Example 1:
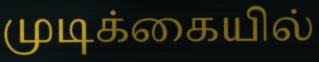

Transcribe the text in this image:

முடிக்கையில்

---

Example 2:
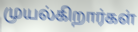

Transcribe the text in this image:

முயல்கிறார்கள்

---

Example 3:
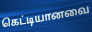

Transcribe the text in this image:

கெட்டியானவை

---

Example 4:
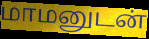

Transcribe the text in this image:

மாமனுடன்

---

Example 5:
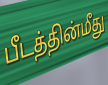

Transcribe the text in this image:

பீடத்தின்மீது